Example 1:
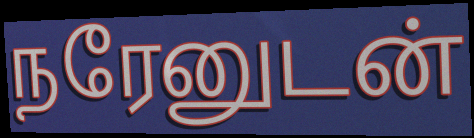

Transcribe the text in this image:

நரேனுடன்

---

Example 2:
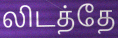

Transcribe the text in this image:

லிடத்தே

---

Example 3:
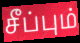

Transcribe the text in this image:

சீப்பும்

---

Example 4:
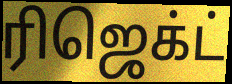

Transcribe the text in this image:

ரிஜெக்ட்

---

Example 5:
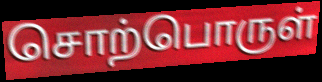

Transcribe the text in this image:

சொற்பொருள்